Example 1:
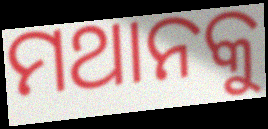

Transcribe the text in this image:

ମଥାନକୁ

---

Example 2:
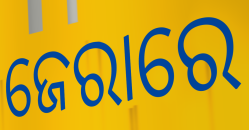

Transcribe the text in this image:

ଜେରାରେ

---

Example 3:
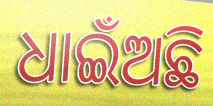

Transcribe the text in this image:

ଧାଇଁଅଛି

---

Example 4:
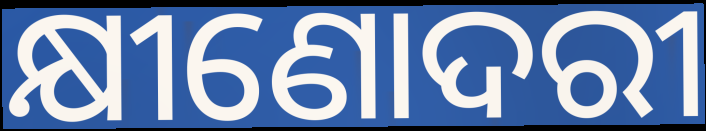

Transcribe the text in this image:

କ୍ଷୀଣୋଦରୀ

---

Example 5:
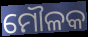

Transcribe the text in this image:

ମୌଳକ